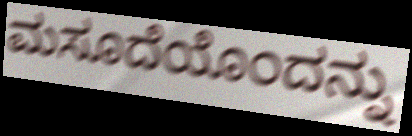
ಮಸೂದೆಯೊಂದನ್ನು